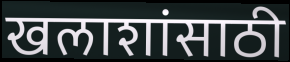
खलाशांसाठी